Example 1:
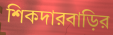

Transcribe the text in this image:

শিকদারবাড়ির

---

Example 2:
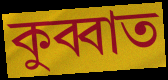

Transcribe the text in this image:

কুব্বাত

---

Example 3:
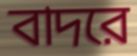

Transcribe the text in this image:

বাদরে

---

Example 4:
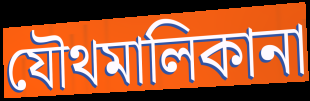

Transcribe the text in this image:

যৌথমালিকানা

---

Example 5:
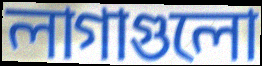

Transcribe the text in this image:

লাগাগুলো